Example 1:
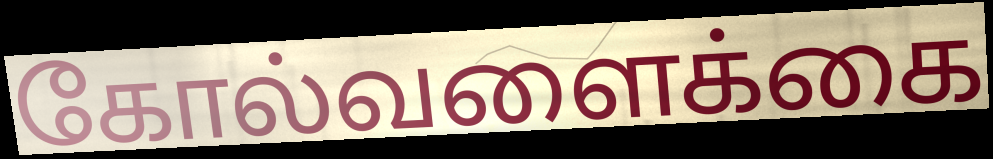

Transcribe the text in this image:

கோல்வளைக்கை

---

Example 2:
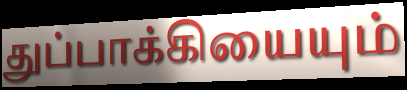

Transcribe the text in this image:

துப்பாக்கியையும்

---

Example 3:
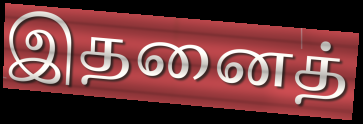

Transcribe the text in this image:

இதனைத்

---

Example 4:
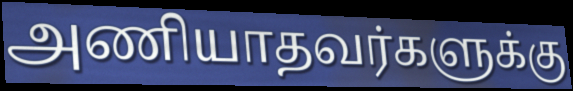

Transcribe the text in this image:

அணியாதவர்களுக்கு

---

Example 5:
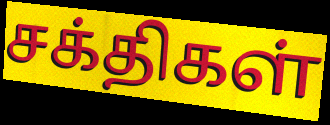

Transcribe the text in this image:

சக்திகள்